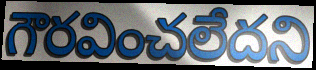
గౌరవించలేదని